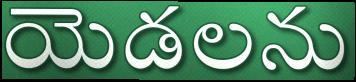
యెడలను